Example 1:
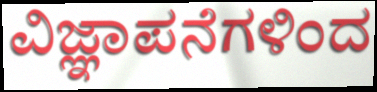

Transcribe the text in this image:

ವಿಜ್ಞಾಪನೆಗಳಿಂದ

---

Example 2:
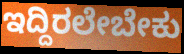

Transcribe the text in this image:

ಇದ್ದಿರಲೇಬೇಕು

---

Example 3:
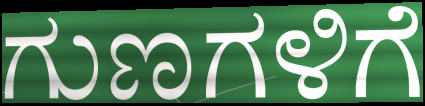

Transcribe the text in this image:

ಗುಣಗಳಿಗೆ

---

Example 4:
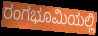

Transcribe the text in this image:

ರಂಗಭೂಮಿಯಲ್ಲಿ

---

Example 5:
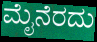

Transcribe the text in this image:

ಮೈನೆರದು